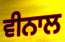
ਵੀਨਾਲ